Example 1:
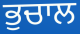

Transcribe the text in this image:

ਭੁਚਾਲ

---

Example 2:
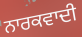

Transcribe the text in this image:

ਨਾਰਕਵਾਦੀ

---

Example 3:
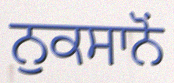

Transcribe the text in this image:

ਨੁਕਸਾਨੋਂ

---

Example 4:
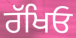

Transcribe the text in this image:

ਰੱਖਿਓ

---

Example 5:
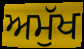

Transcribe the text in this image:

ਅਮੁੱਖ